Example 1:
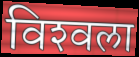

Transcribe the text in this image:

विश्वला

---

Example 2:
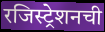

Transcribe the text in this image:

रजिस्ट्रेशनची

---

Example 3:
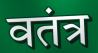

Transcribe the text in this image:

वतंत्र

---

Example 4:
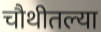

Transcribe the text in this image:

चौथीतल्या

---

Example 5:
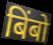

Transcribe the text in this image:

बिंबो